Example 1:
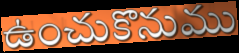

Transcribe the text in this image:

ఉంచుకొనుము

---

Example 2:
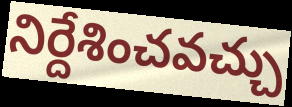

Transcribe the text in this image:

నిర్దేశించవచ్చు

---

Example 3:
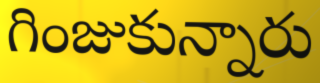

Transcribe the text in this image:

గింజుకున్నారు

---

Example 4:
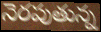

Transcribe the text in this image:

నెరపుతున్న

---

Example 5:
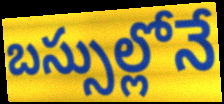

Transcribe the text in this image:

బస్సుల్లోనే